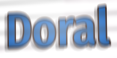
Doral